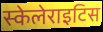
स्केलेराइटिस